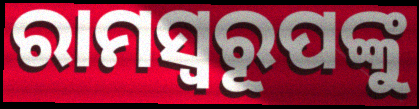
ରାମସ୍ୱରୂପଙ୍କୁ